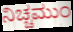
ನಿಚ್ಚಮುಂ